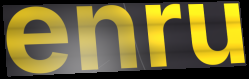
enru